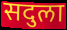
सदुला